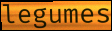
legumes